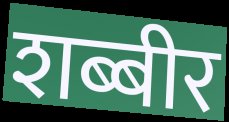
शब्बीर